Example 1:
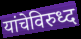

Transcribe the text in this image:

यांचेविरुध्द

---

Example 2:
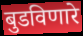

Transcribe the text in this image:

बुडविणारे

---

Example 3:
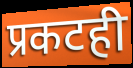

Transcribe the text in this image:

प्रकटही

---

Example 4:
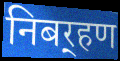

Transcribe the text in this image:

निबर्हण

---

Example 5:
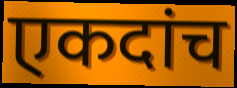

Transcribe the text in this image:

एकदांच